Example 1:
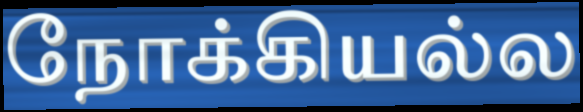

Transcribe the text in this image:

நோக்கியல்ல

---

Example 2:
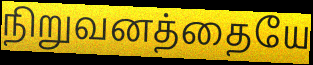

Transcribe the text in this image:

நிறுவனத்தையே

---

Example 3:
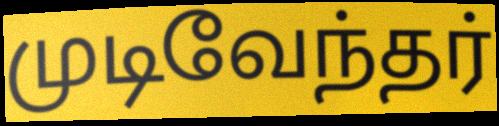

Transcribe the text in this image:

முடிவேந்தர்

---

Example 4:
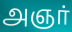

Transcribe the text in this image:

அஞர்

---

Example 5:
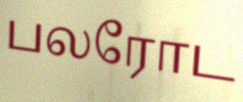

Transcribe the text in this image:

பலரோட